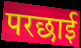
परछाई